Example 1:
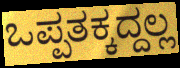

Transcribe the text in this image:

ಒಪ್ಪತಕ್ಕದ್ದಲ್ಲ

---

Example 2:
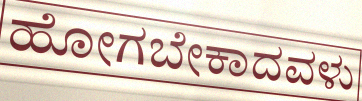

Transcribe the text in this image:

ಹೋಗಬೇಕಾದವಳು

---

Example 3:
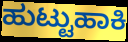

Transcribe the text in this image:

ಹುಟ್ಟುಹಾಕಿ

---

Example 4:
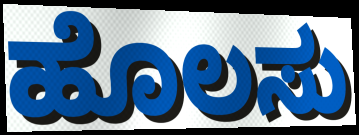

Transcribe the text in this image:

ಹೊಲಸು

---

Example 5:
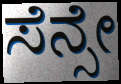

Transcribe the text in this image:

ಸೆನ್ಸೇ